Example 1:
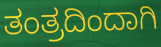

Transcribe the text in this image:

ತಂತ್ರದಿಂದಾಗಿ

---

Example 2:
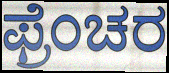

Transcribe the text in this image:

ಫ್ರೆಂಚರ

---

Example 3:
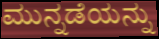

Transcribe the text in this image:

ಮುನ್ನಡೆಯನ್ನು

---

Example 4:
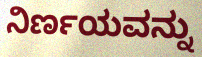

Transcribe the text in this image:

ನಿರ್ಣಯವನ್ನು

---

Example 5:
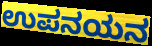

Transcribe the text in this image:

ಉಪನಯನ